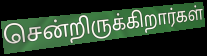
சென்றிருக்கிறார்கள்